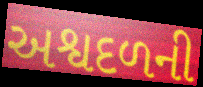
અશ્વદળની